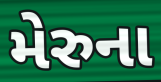
મેરુના